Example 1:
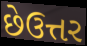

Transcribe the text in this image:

છેઉત્તર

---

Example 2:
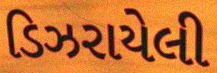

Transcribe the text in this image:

ડિઝરાયેલી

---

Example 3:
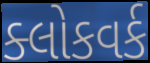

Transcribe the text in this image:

ક્લોકવર્ક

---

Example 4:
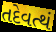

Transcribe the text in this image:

તદેવત્થં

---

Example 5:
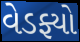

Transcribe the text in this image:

વેડફ્યો